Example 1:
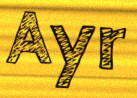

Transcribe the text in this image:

Ayr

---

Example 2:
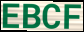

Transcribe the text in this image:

EBCF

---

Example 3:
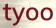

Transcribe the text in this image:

tyoo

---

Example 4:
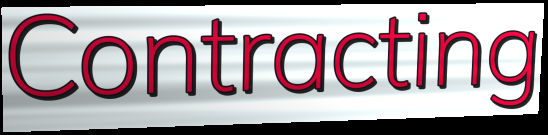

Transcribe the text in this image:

Contracting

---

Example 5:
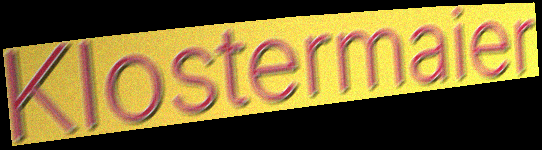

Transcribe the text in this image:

Klostermaier